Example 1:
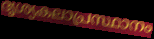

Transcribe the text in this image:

ദൃശ്യകലാപ്രസ്ഥാനം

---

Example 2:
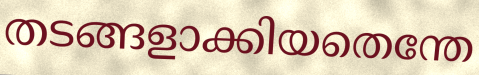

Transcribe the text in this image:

തടങ്ങളാക്കിയതെന്തേ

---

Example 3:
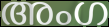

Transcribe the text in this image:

അംഗ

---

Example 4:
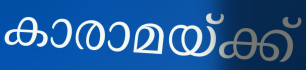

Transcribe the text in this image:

കാരാമയ്ക്ക്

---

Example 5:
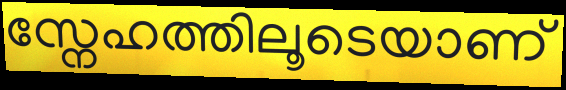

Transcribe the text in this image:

സ്നേഹത്തിലൂടെയാണ്